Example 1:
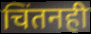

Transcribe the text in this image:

चिंतनही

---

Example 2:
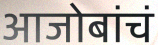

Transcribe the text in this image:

आजोबांचं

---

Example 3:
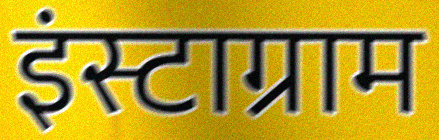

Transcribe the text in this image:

इंस्टाग्राम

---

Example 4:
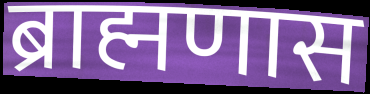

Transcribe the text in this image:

ब्राह्मणास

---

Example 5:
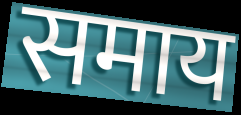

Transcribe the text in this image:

समाय